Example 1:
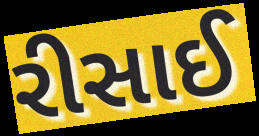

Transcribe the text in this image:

રીસાઈ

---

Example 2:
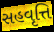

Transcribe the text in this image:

સહવૃત્તિ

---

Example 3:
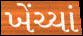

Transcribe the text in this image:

ખેંચ્યાં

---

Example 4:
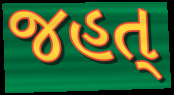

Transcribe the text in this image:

જહત્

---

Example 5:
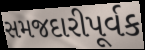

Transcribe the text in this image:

સમજદારીપૂર્વક